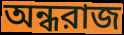
অন্ধরাজ